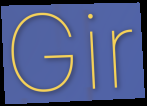
Gir